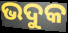
ଭଦୁକ